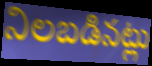
నిలబడినట్లు